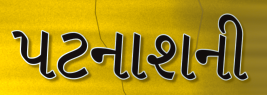
પટનાશની